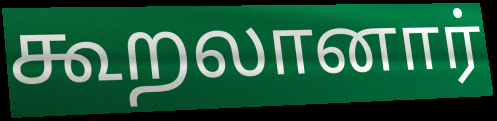
கூறலானார்